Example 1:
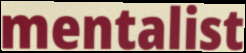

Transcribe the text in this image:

mentalist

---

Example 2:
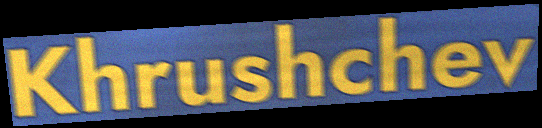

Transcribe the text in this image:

Khrushchev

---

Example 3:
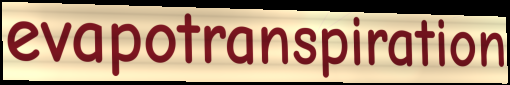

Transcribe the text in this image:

evapotranspiration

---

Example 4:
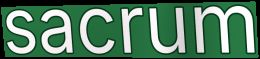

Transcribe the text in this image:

sacrum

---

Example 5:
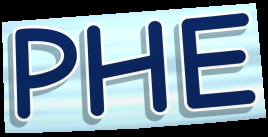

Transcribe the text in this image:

PHE